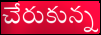
చేరుకున్న